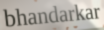
bhandarkar